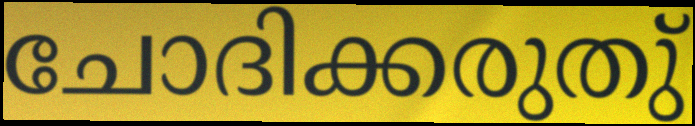
ചോദിക്കരുതു്